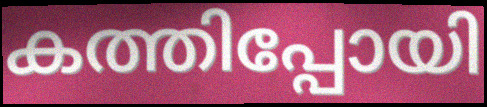
കത്തിപ്പോയി